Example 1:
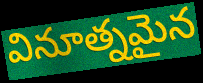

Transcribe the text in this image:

వినూత్నమైన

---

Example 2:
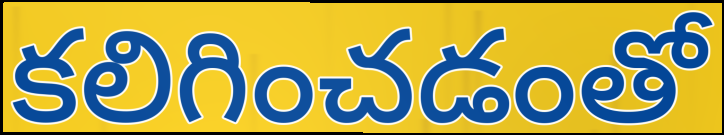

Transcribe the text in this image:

కలిగించడంతో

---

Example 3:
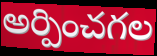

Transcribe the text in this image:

అర్పించగల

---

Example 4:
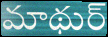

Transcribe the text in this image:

మాథుర్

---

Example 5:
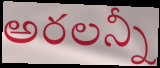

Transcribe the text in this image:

అరలన్నీ